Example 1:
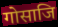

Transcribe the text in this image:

गोसाजि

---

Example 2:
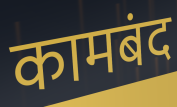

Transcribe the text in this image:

कामबंद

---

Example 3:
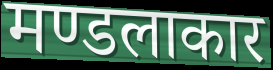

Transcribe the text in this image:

मण्डलाकार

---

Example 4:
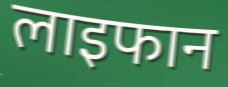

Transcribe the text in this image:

लाइफान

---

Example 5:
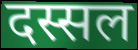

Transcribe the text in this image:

दस्सल